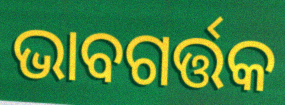
ଭାବଗର୍ତ୍ତକ